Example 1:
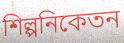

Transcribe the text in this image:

শিল্পনিকেতন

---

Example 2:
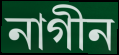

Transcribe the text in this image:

নাগীন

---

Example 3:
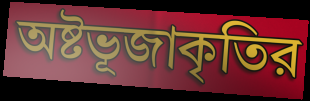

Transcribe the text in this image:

অষ্টভূজাকৃতির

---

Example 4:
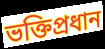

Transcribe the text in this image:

ভক্তিপ্রধান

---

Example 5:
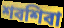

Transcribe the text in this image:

শবশিবা